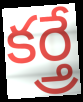
కర్త్రే